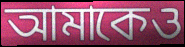
আমাকেও